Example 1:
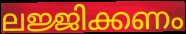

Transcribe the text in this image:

ലജ്ജിക്കണം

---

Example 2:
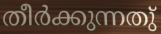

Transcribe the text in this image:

തീർക്കുന്നതു്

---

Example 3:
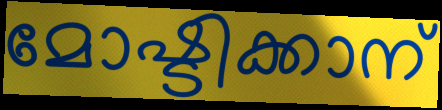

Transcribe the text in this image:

മോഷ്ടിക്കാന്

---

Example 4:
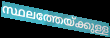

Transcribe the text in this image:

സ്ഥലത്തേയ്ക്കുള്ള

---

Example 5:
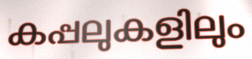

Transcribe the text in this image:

കപ്പലുകളിലും